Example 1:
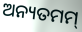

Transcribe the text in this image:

ଅନ୍ୟତମମ୍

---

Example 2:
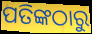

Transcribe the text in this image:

ପତିଙ୍କଠାରୁ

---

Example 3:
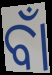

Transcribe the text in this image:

ବାଁ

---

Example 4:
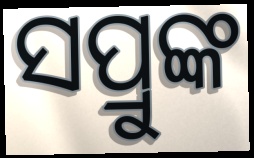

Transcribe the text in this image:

ସପ୍ରୁଙ୍କ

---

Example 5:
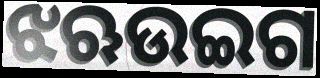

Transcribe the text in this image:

ଝଋଉଇଗ